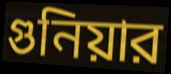
গুনিয়ার